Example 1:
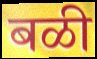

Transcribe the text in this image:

बळी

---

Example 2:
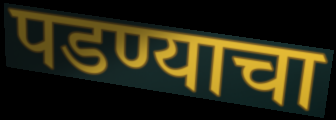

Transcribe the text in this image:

पडण्याचा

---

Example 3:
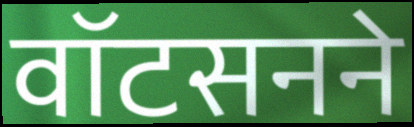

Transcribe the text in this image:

वॉटसनने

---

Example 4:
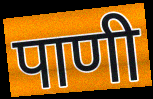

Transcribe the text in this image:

पाणी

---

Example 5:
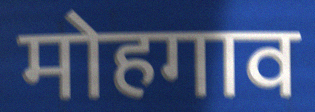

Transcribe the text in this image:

मोहगाव